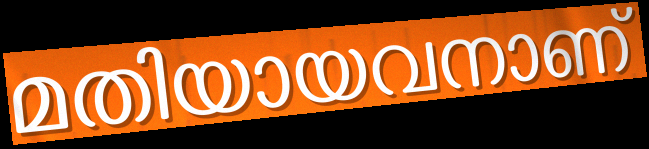
മതിയായവനാണ്